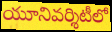
యూనివర్శిటీలో